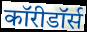
कॉरीडॉर्स